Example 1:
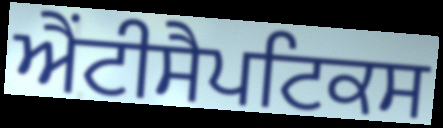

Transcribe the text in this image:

ਐਂਟੀਸੈਪਟਿਕਸ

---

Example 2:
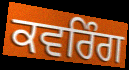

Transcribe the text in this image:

ਕਵਰਿੰਗ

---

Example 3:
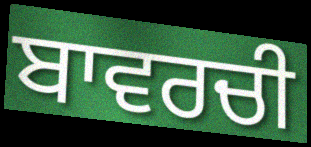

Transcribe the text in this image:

ਬਾਵਰਚੀ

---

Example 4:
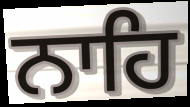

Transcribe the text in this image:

ਨਾਹਿ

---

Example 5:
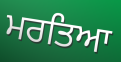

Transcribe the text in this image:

ਮਰਤਿਆ